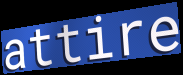
attire